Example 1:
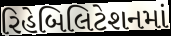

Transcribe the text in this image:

રિહેબિલિટેશનમાં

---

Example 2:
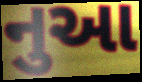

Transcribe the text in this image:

નુઆ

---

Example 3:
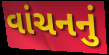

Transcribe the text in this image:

વાંચનનું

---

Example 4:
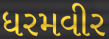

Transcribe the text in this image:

ધરમવીર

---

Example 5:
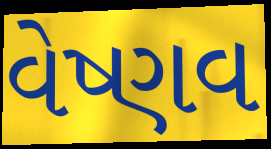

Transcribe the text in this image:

વેષ્ણવ